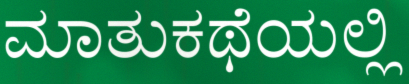
ಮಾತುಕಥೆಯಲ್ಲಿ